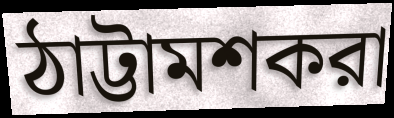
ঠাট্টামশকরা